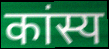
कांस्य